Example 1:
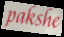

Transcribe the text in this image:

pakshe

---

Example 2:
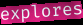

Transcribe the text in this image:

explores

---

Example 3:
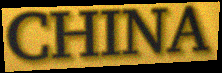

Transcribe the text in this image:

CHINA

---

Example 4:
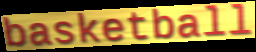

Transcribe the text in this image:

basketball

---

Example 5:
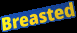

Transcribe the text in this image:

Breasted